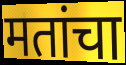
मतांचा